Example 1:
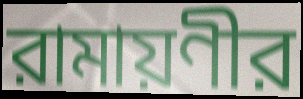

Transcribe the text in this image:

রামায়ণীর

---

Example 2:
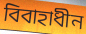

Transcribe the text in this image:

বিবাহাধীন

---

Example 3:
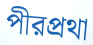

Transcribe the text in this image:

পীরপ্রথা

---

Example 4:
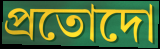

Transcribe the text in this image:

প্রতোদো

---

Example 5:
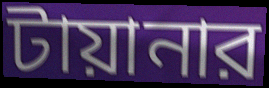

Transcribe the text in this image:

টায়ানার